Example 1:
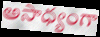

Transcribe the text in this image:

అసాధ్యంగా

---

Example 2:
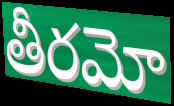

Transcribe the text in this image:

తీరమో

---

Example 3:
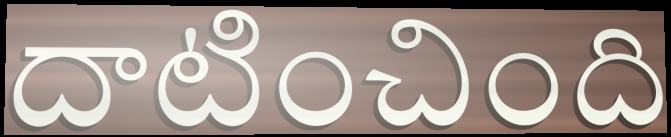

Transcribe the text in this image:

దాటించింది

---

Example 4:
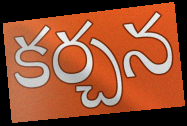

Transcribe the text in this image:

కర్చన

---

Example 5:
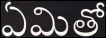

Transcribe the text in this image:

ఏమితో